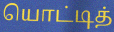
யொட்டித்